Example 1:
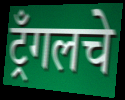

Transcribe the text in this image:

ट्रँगलचे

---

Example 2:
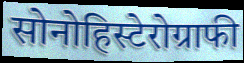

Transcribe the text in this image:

सोनोहिस्टेरोग्राफी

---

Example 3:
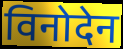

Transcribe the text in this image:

विनोदेन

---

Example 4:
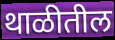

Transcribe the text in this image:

थाळीतील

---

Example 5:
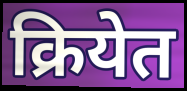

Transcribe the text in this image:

क्रियेत